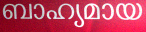
ബാഹ്യമായ